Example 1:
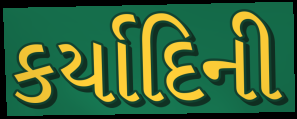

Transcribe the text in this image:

કર્યાદિની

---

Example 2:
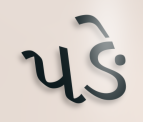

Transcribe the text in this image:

પઙે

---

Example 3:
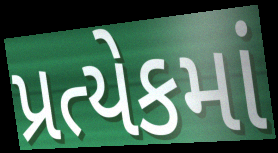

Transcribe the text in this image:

પ્રત્યેકમાં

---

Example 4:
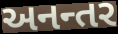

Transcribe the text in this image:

અનન્તર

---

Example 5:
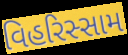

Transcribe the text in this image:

વિહરિસ્સામ